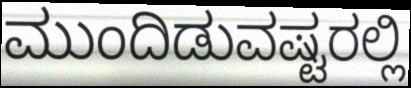
ಮುಂದಿಡುವಷ್ಟರಲ್ಲಿ